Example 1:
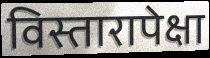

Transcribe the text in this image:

विस्तारापेक्षा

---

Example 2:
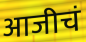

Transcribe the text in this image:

आजीचं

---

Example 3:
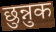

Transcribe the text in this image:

छुन्नुक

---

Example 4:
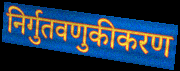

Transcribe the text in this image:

निर्गुतवणुकीकरण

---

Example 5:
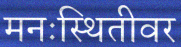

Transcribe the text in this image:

मनःस्थितीवर